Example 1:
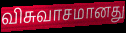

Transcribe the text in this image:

விசுவாசமானது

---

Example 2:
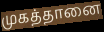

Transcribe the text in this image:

முகத்தானை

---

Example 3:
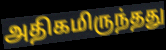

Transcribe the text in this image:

அதிகமிருந்தது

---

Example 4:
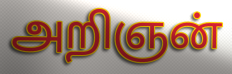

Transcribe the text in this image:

அறிஞன்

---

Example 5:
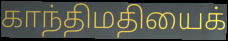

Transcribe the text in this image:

காந்திமதியைக்